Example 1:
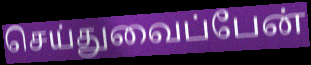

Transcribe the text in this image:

செய்துவைப்பேன்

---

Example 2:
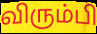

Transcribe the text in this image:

விரும்பி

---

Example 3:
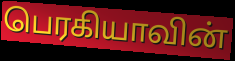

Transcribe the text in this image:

பெரகியாவின்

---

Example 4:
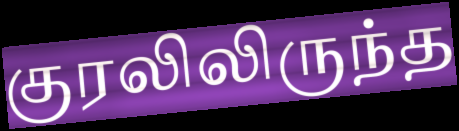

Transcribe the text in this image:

குரலிலிருந்த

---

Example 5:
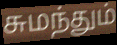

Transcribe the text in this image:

சுமந்தும்